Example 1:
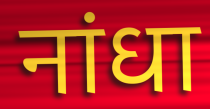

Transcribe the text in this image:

नांधा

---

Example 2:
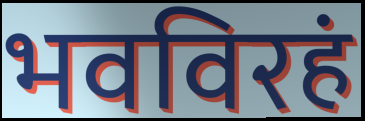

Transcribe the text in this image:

भवविरहं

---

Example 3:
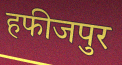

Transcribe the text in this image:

हफीजपुर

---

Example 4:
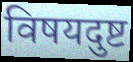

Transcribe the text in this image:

विषयदुष्ट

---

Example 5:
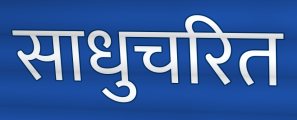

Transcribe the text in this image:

साधुचरित